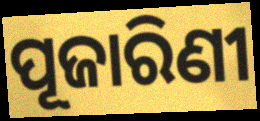
ପୂଜାରିଣୀ